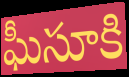
ఘీసూకి